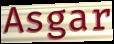
Asgar